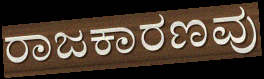
ರಾಜಕಾರಣವು